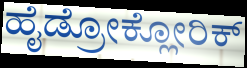
ಹೈಡ್ರೋಕ್ಲೋರಿಕ್